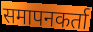
समापनकर्ता